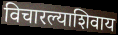
विचारल्याशिवाय